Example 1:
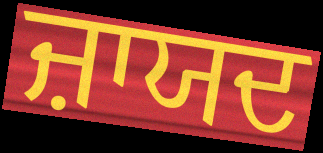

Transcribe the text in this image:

ਜ਼ਾਯਦ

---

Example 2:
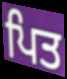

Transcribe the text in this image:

ਪਿਤ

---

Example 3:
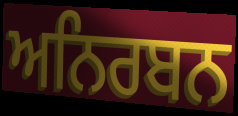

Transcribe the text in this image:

ਅਨਿਰਬਨ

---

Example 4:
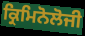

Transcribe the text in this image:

ਕ੍ਰਿਮਿਨੋਲੋਜੀ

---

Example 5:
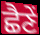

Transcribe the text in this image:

ਛੈਣੇਂ